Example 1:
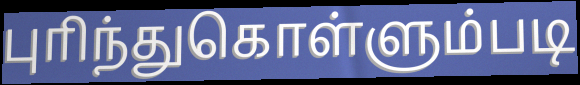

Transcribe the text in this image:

புரிந்துகொள்ளும்படி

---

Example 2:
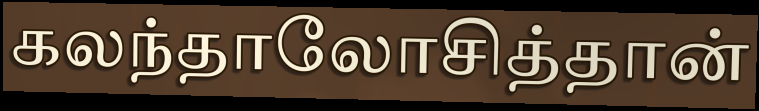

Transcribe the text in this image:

கலந்தாலோசித்தான்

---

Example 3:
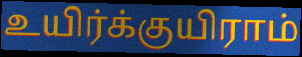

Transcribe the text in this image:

உயிர்க்குயிராம்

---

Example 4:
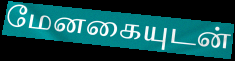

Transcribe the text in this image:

மேனகையுடன்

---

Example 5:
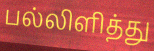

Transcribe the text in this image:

பல்லிளித்து